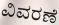
ವಿವರಣೆ